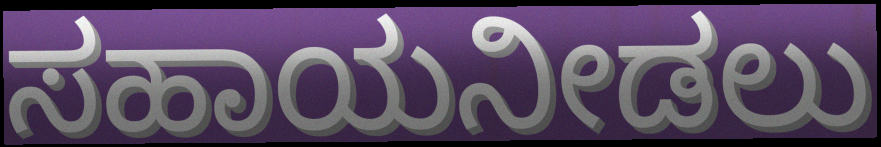
ಸಹಾಯನೀಡಲು